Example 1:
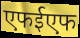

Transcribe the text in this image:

एफईएफ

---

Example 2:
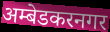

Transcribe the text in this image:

अम्बेडकरनगर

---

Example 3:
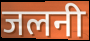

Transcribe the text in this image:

जलनी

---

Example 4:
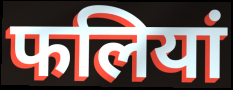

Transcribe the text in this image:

फलियां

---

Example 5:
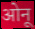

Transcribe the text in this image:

ओनू